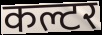
कल्टर